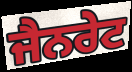
ਜੈਨਰੇਟ